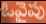
ఓవైపు